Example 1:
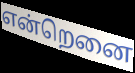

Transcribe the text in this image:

என்றெனை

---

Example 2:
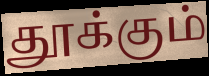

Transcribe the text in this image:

தூக்கும்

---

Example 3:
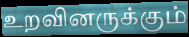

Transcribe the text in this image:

உறவினருக்கும்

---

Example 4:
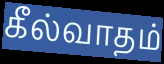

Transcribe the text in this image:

கீல்வாதம்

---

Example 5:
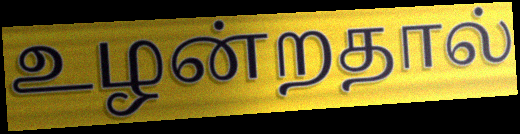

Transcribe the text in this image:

உழன்றதால்